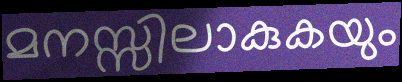
മനസ്സിലാകുകയും